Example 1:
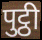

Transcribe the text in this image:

पुट्ठी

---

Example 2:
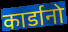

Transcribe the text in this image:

कार्डानो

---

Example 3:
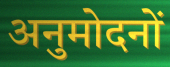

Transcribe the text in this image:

अनुमोदनों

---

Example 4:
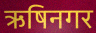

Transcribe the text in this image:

ऋषिनगर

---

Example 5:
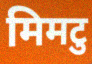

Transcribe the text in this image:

मिमटु